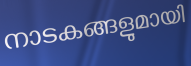
നാടകങ്ങളുമായി